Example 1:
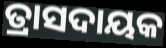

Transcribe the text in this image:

ତ୍ରାସଦାୟକ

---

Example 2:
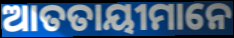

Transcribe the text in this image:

ଆତତାୟୀମାନେ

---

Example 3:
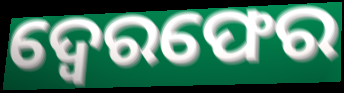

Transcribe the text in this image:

ଦ୍ବେରଫେର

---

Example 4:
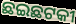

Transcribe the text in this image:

ଛଇଛଟକୀ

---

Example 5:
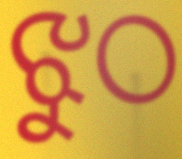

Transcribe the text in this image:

ଝୁଠ